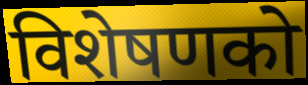
विशेषणको